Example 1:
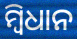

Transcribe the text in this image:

ମ୍ବିଧାନ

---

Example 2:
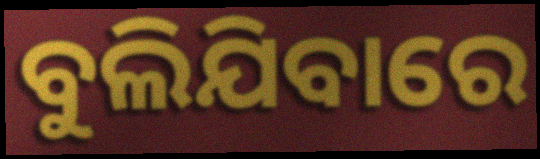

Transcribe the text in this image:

ବୁଲିଯିବାରେ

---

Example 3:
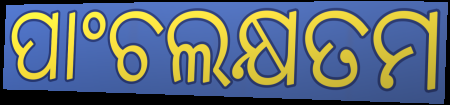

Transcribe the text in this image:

ପାଂଚଲକ୍ଷତମ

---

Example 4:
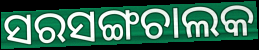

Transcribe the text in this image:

ସରସଙ୍ଗଚାଲକ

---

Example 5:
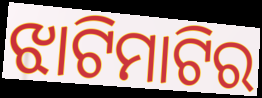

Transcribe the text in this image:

ଝାଟିମାଟିର